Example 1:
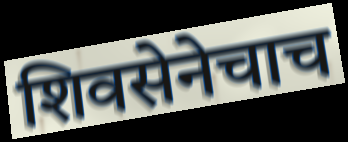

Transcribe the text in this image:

शिवसेनेचाच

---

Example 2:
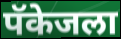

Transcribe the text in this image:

पॅकेजला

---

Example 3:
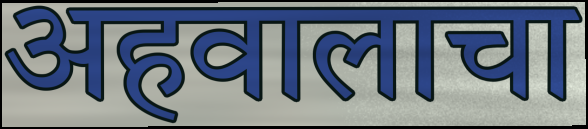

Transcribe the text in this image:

अहवालाचा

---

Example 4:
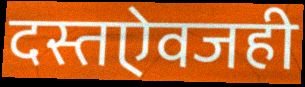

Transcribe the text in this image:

दस्तऐवजही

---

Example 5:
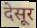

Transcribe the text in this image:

देसूर